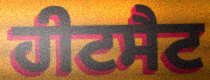
ਹੀਟਸੈਟ